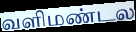
வளிமண்டல